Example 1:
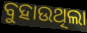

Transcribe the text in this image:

ବୁହାଉଥିଲା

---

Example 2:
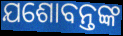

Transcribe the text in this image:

ଯଶୋବନ୍ତଙ୍କ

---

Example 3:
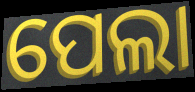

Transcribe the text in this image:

ପେଲା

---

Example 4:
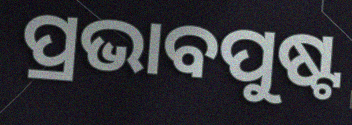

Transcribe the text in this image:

ପ୍ରଭାବପୁଷ୍ଟ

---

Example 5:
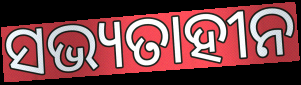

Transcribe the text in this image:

ସଭ୍ୟତାହୀନ